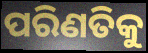
ପରିଣତିକୁ